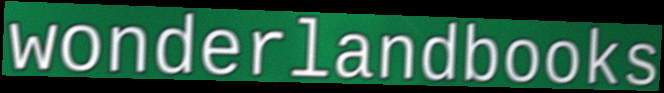
wonderlandbooks